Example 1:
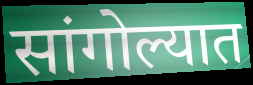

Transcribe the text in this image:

सांगोल्यात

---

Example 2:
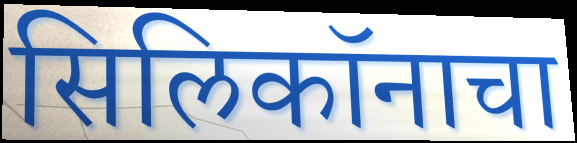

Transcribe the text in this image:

सिलिकॉनाचा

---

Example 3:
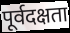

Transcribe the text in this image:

पूर्वदक्षता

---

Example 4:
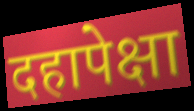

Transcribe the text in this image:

दहापेक्षा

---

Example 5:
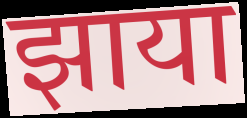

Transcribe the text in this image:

झाया